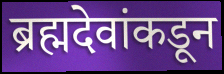
ब्रह्मदेवांकडून